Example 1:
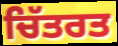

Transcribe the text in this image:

ਚਿੱਤਰਤ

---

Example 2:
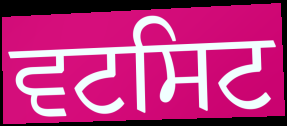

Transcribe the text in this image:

ਵਟਸਿਟ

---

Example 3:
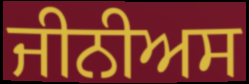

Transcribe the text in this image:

ਜੀਨੀਅਸ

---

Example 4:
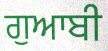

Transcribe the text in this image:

ਗੁਆਬੀ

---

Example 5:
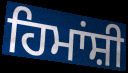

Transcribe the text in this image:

ਹਿਮਾਂਸ਼ੀ